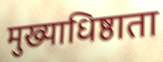
मुख्याधिष्ठाता